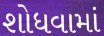
શોધવામાં